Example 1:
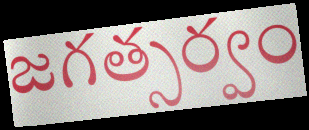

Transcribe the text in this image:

జగత్సర్వం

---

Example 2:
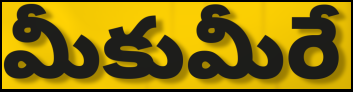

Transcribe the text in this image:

మీకుమీరే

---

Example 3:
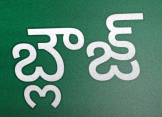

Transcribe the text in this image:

బ్లౌజ్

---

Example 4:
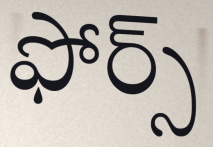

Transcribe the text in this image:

ఫోర్స్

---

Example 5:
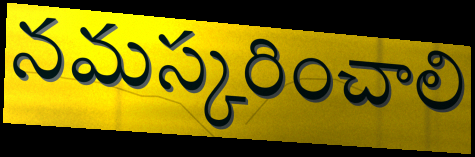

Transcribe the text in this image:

నమస్కరించాలి